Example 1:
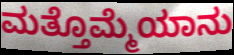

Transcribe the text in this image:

ಮತ್ತೊಮ್ಮೆಯಾನು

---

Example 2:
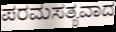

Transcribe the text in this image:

ಪರಮಸತ್ಯವಾದ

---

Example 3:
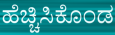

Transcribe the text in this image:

ಹೆಚ್ಚಿಸಿಕೊಂಡ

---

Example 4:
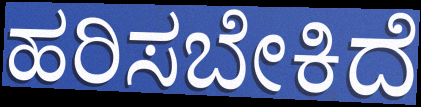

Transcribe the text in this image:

ಹರಿಸಬೇಕಿದೆ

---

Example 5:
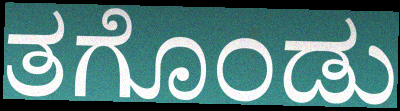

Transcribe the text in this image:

ತಗೊಂಡು